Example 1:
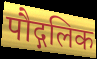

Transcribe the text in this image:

पौद्गलिक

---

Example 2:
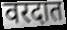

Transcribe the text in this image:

वरदात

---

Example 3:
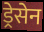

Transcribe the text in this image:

ड्रेसेन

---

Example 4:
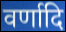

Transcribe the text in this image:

वर्णादि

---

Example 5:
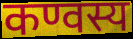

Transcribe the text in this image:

कण्वस्य